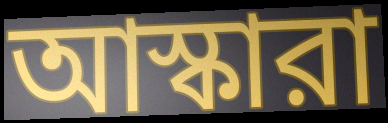
আস্কারা